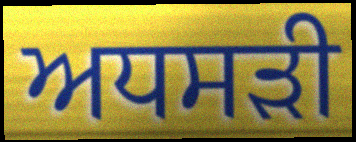
ਅਧਸੜੀ